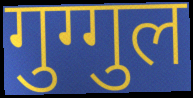
गुग्गुल